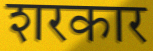
शरकार